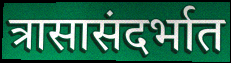
त्रासासंदर्भात